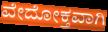
ವೇದೋಕ್ತವಾಗಿ